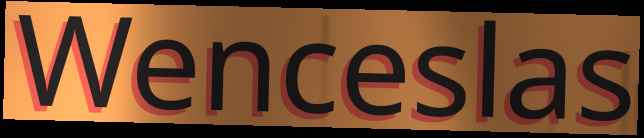
Wenceslas